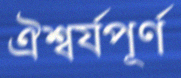
ঐশ্বর্যপূর্ণ